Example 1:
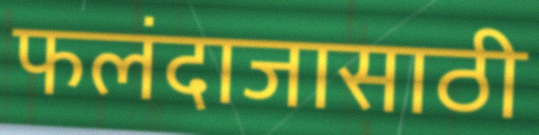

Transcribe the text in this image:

फलंदाजासाठी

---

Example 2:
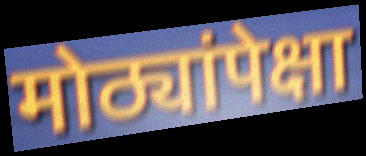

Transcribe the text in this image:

मोठ्यांपेक्षा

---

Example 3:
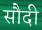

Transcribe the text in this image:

सौदी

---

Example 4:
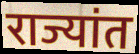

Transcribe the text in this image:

राज्यांत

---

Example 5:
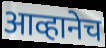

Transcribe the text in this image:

आव्हानेच